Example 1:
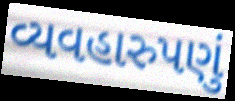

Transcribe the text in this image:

વ્યવહારુપણું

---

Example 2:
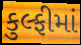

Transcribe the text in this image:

કુલ્ફીમાં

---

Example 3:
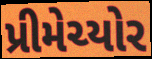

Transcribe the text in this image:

પ્રીમેચ્યોર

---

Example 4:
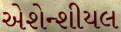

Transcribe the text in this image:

એશેન્શીયલ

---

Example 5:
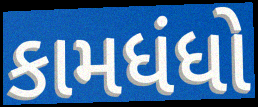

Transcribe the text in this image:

કામધંધો